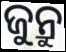
ଜୁନ୍ରୁ